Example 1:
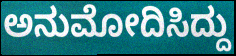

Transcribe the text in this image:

ಅನುಮೋದಿಸಿದ್ದು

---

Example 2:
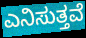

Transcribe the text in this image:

ಎನಿಸುತ್ತವೆ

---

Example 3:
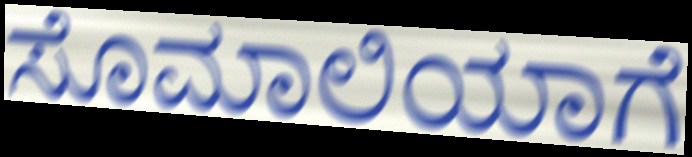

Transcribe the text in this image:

ಸೊಮಾಲಿಯಾಗೆ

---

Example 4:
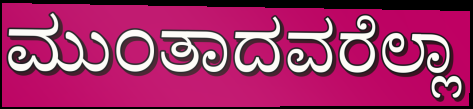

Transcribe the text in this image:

ಮುಂತಾದವರೆಲ್ಲಾ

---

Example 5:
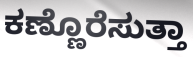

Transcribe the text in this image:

ಕಣ್ಣೊರೆಸುತ್ತಾ